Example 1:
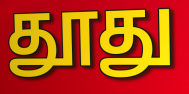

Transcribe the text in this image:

தூது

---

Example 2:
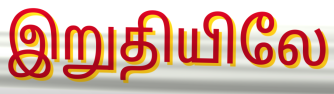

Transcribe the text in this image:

இறுதியிலே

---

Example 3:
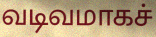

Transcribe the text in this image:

வடிவமாகச்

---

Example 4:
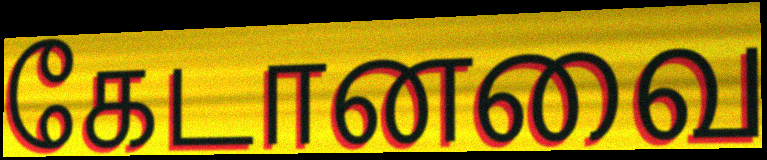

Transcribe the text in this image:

கேடானவை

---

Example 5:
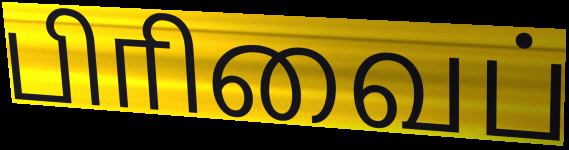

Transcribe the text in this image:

பிரிவைப்